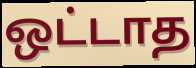
ஒட்டாத